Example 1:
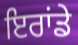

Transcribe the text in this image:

ਇਰਾਂਡੇ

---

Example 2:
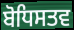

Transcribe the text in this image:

ਬੋਧਿਸਤਵ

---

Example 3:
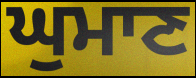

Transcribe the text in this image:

ਘੁਮਾਣ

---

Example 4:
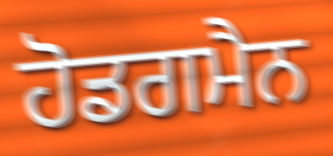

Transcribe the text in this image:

ਹੋਡਗਮੈਨ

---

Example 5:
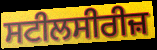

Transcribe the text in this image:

ਸਟੀਲਸੀਰੀਜ਼